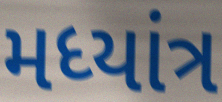
મધ્યાંત્ર